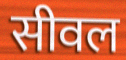
सीवल